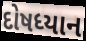
દોષધ્યાન